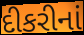
દીકરીનાં